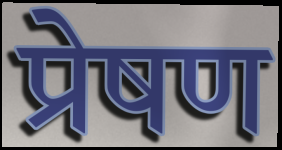
प्रेषण